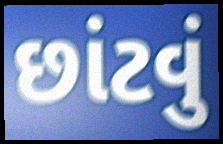
છાંટવું